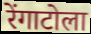
रेंगाटोला